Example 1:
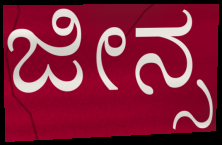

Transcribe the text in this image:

ಜೀನ್ಸ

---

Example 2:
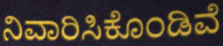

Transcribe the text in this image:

ನಿವಾರಿಸಿಕೊಂಡಿವೆ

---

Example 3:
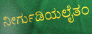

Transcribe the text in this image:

ನೀರ್ಗುಡಿಯಲೈತಂ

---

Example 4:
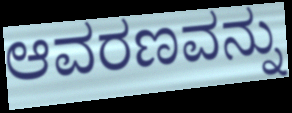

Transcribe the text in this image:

ಆವರಣವನ್ನು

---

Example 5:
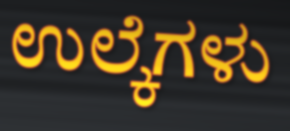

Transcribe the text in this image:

ಉಲ್ಕೆಗಳು